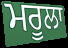
ਮਰੂਲਾ